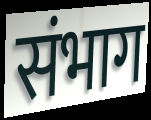
संभाग